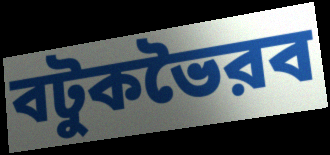
বটুকভৈরব